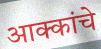
आक्कांचे